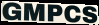
GMPCS